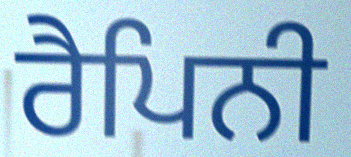
ਰੈਪਿਨੀ